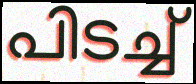
പിടച്ച്